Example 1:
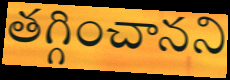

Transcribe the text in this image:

తగ్గించానని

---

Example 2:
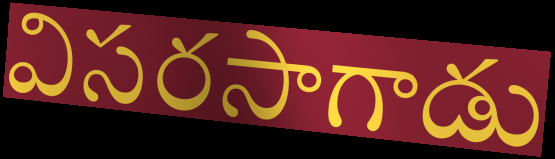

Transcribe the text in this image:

విసరసాగాడు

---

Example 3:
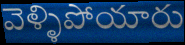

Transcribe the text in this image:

వెళ్ళిపోయారు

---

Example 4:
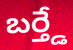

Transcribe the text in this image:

బర్త్డే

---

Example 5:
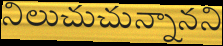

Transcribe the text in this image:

నిలుచుచున్నానని